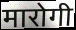
मारोगी